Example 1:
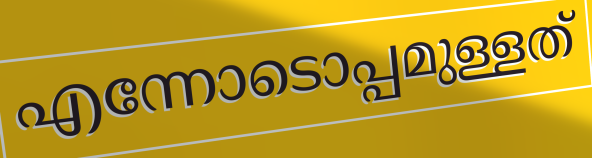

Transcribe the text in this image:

എന്നോടൊപ്പമുള്ളത്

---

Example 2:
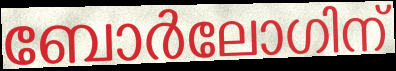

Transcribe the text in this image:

ബോർലോഗിന്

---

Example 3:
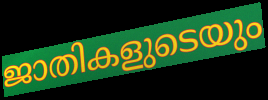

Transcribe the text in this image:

ജാതികളുടെയും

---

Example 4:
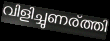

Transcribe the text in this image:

വിളിച്ചുണര്ത്തി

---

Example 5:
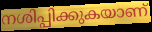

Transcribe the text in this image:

നശിപ്പിക്കുകയാണ്